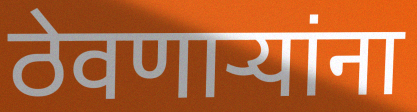
ठेवणार्‍यांना